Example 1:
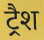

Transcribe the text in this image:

ट्रैश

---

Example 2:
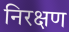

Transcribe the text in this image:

निरक्षण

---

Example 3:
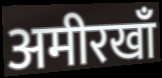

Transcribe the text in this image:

अमीरखाँ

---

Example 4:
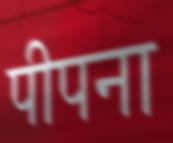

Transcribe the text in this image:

पीपना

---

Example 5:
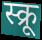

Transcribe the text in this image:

स्क्रू